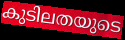
കുടിലതയുടെ